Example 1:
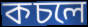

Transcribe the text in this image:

কচলে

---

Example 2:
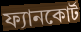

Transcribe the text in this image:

ফ্যানকোর্ট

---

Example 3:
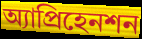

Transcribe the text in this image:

অ্যাপ্রিহেনশন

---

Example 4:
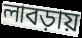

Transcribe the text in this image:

লাবড়ায়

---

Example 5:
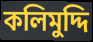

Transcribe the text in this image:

কলিমুদ্দি